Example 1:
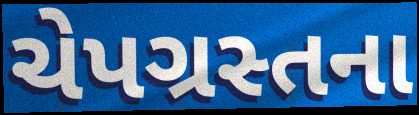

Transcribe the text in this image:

ચેપગ્રસ્તના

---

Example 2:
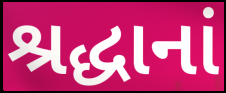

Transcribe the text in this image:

શ્રદ્ધાનાં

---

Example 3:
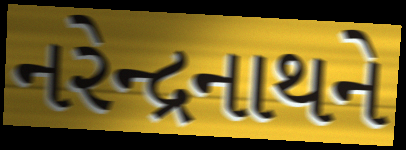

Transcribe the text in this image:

નરેન્દ્રનાથને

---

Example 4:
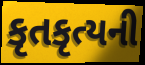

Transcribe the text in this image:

કૃતકૃત્યની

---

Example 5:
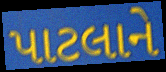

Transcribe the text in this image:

પાટલાને